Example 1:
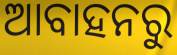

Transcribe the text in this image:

ଆବାହନରୁ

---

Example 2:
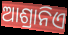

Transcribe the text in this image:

ଆଶ୍ରାନିଏ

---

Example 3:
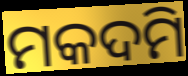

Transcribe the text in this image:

ମକଦମି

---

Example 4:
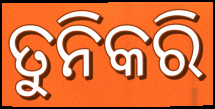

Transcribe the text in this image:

ତୁନିକରି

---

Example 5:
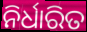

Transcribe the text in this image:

ନିର୍ଧାରିତ